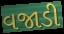
વજાડી